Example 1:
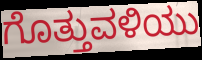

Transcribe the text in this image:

ಗೊತ್ತುವಳಿಯು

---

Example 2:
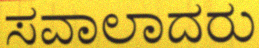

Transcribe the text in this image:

ಸವಾಲಾದರು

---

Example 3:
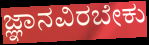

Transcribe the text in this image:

ಜ್ಞಾನವಿರಬೇಕು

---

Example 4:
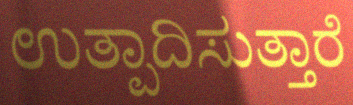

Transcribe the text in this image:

ಉತ್ಪಾದಿಸುತ್ತಾರೆ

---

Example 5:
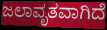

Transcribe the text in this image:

ಜಲಾವೃತವಾಗಿದೆ